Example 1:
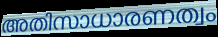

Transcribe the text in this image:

അതിസാധാരണത്വം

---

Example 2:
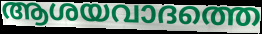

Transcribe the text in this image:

ആശയവാദത്തെ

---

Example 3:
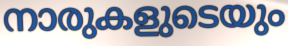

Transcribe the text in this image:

നാരുകളുടെയും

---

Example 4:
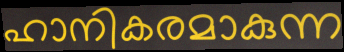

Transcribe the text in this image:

ഹാനികരമാകുന്ന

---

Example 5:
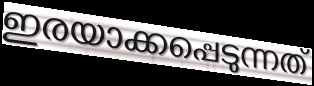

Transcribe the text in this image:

ഇരയാക്കപ്പെടുന്നത്